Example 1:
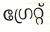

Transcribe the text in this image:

ഗ്രേറ്റ്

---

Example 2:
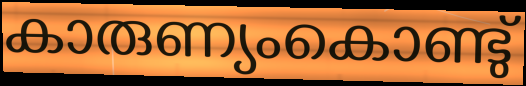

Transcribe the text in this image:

കാരുണ്യംകൊണ്ടു്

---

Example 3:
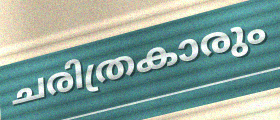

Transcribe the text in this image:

ചരിത്രകാരും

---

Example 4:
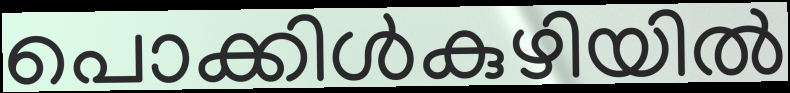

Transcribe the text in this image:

പൊക്കിൾകുഴിയിൽ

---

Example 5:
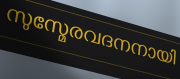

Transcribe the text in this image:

സുസ്മേരവദനനായി